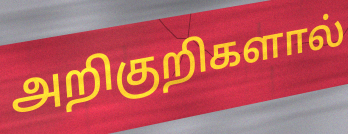
அறிகுறிகளால்